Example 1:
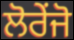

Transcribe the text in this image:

ਲੋਰੇਂਜੋ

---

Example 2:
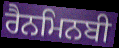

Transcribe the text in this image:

ਰੈਨਮਿਨਬੀ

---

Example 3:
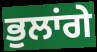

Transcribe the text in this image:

ਭੁਲਾਂਗੇ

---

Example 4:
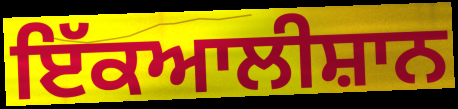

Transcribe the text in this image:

ਇੱਕਆਲੀਸ਼ਾਨ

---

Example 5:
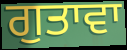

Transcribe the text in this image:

ਗੁਤਾਵਾ